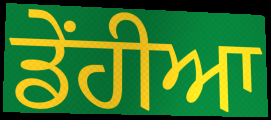
ਡੇਂਹੀਆ